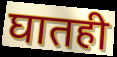
घातही